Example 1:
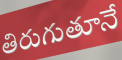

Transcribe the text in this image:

తిరుగుతూనే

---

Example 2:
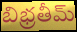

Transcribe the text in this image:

బిభ్రతీమ్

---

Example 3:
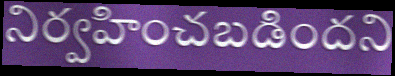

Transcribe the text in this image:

నిర్వహించబడిందని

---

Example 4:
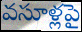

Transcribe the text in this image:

వసూళ్లపై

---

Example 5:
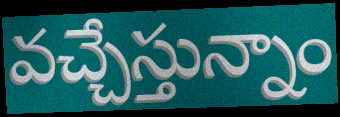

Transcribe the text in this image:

వచ్చేస్తున్నాం